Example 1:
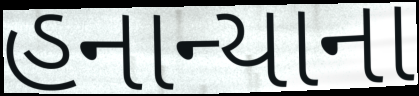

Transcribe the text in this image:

હનાન્યાના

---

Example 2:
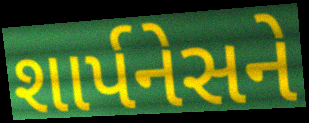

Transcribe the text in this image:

શાર્પનેસને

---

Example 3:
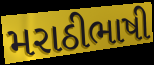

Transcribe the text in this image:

મરાઠીભાષી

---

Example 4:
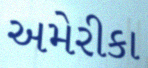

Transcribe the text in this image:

અમેરીકા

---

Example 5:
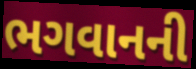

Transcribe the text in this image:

ભગવાનની